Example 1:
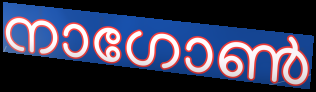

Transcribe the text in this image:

നാഗോൺ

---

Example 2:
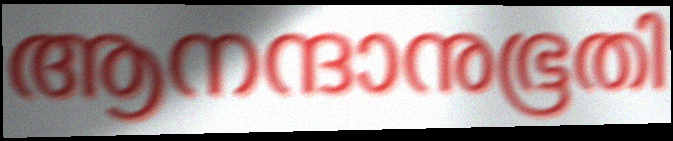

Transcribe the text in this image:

ആനന്ദാനുഭൂതി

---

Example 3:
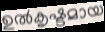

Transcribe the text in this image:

ഉൽകൃഷ്ടമായ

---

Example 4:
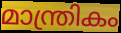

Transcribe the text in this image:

മാന്ത്രികം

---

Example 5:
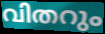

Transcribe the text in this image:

വിതറും